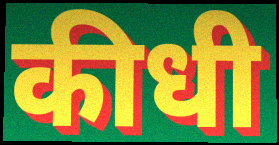
कीधी